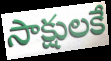
సాక్షులకే